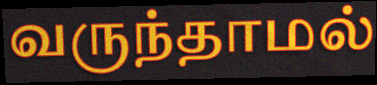
வருந்தாமல்